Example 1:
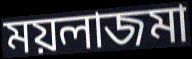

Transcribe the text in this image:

ময়লাজমা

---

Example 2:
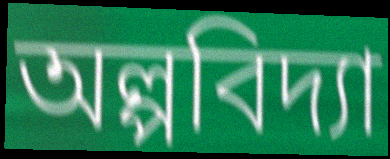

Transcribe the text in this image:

অল্পবিদ্যা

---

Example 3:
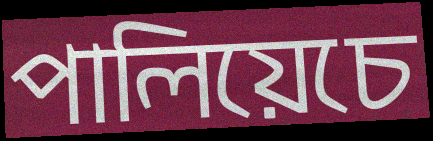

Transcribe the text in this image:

পালিয়েচে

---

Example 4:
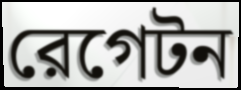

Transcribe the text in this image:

রেগেটন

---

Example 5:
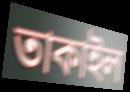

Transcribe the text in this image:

তাকাইল